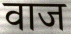
वाज